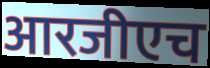
आरजीएच